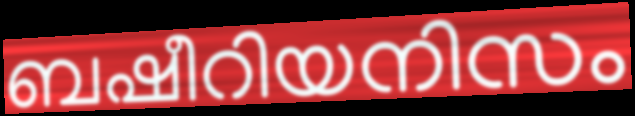
ബഷീറിയനിസം